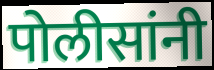
पोलीसांनी